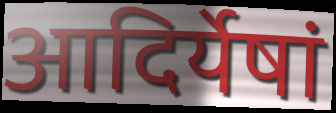
आदिर्येषां